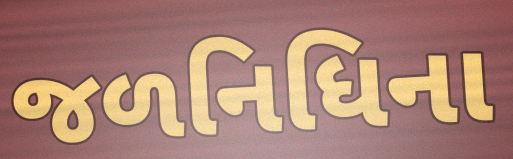
જળનિધિના